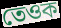
তেওক